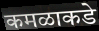
कमळाकडे